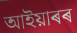
আইয়াৰৰ